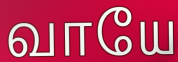
வாயே